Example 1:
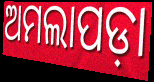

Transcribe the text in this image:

ଅମଲାପଡ଼ା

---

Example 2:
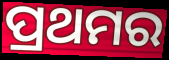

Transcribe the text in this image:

ପ୍ରଥମର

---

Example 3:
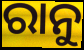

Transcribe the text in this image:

ରାନୁ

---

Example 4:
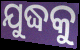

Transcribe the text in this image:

ଯୁଦ୍ଧକୁ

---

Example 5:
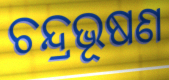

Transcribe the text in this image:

ଚନ୍ଦ୍ରଭୂଷଣ